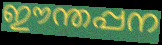
ഈന്തപ്പന